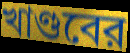
খাণ্ডবের